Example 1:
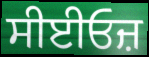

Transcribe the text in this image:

ਸੀਈਓਜ਼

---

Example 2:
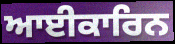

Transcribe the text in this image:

ਆਈਕਾਰਿਨ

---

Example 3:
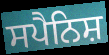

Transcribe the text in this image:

ਸਪੈਨਿਸ਼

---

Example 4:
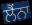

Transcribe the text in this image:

ਲੈਂਨਾ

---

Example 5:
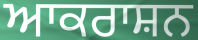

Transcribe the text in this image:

ਆਕਰਾਸ਼ਨ